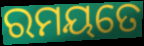
ରମୟତେ